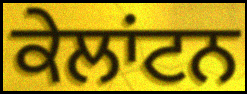
ਕੇਲਾਂਟਨ